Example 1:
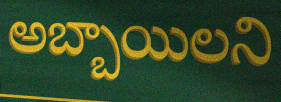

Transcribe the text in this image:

అబ్బాయిలని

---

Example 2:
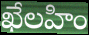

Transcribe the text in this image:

ఖేలహిం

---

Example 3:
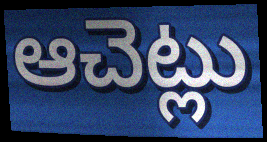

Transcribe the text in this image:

ఆచెట్లు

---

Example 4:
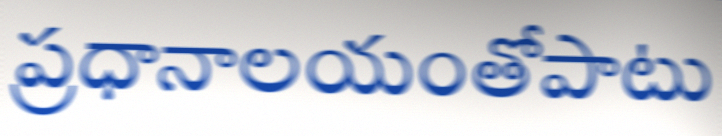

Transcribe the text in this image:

ప్రధానాలయంతోపాటు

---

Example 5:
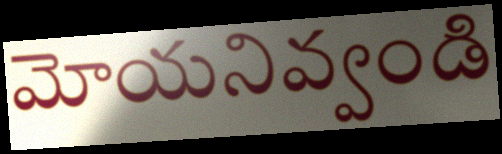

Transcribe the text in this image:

మోయనివ్వండి